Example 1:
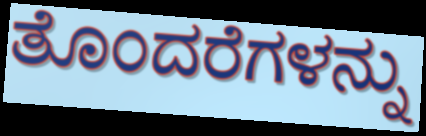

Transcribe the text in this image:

ತೊಂದರೆಗಳನ್ನು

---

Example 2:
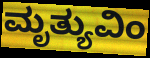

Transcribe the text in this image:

ಮೃತ್ಯುವಿಂ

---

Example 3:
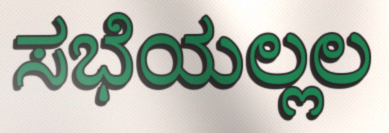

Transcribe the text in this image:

ಸಭೆಯಲ್ಲಲ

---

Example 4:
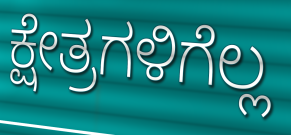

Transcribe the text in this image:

ಕ್ಷೇತ್ರಗಳಿಗೆಲ್ಲ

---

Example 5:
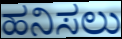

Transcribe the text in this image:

ಹನಿಸಲು